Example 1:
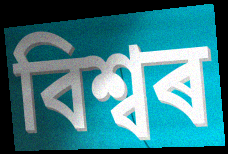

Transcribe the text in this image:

বিশ্বৰ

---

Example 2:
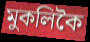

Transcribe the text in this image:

মুকলিকৈ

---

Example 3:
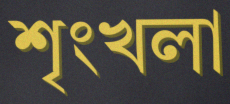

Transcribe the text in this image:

শৃংখলা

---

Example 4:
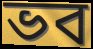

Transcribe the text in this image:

ভব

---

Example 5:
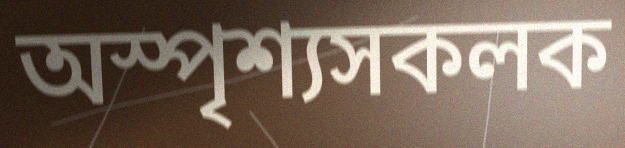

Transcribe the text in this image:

অস্পৃশ্যসকলক